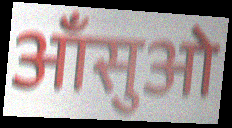
आँसुओ